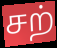
சற்